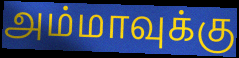
அம்மாவுக்கு